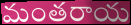
మంతరాయ